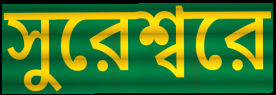
সুরেশ্বরে